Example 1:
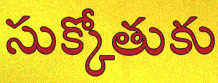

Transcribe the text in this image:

సుక్కోతుకు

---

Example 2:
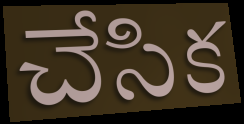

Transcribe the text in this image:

చేసిక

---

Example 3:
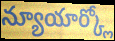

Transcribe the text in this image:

న్యూయార్క్లో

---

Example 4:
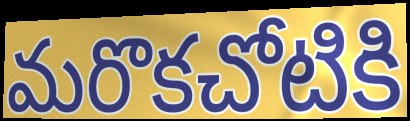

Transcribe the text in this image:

మరొకచోటికి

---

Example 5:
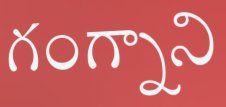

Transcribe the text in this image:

గంగ్నాని